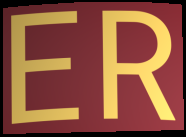
ER